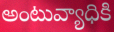
అంటువ్యాధికి